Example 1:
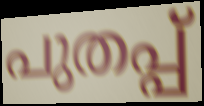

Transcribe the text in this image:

പുതപ്പ്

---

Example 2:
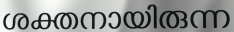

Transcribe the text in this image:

ശക്തനായിരുന്ന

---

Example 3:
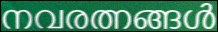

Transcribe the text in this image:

നവരത്നങ്ങൾ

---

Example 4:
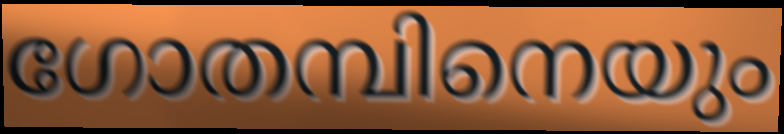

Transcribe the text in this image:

ഗോതമ്പിനെയും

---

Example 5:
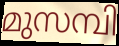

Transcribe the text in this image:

മുസമ്പി